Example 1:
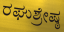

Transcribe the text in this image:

ರಘುಶ್ರೇಷ್ಠ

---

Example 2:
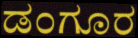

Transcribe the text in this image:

ಡಂಗೂರ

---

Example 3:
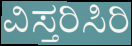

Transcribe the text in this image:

ವಿಸ್ತರಿಸಿರಿ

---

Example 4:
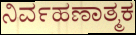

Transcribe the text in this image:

ನಿರ್ವಹಣಾತ್ಮಕ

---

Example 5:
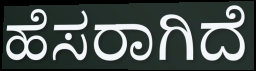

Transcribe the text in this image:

ಹೆಸರಾಗಿದೆ